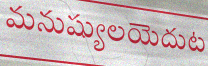
మనుష్యులయెదుట